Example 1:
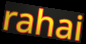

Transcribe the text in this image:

rahai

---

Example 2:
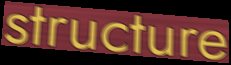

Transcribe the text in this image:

structure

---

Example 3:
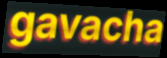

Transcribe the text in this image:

gavacha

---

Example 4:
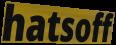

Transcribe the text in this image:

hatsoff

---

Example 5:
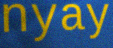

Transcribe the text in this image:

nyay